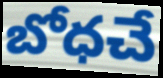
బోధచే